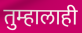
तुम्हालाही